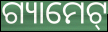
ଗ୍ୟାମେଟ୍